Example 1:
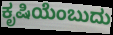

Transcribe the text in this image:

ಕೃಷಿಯೆಂಬುದು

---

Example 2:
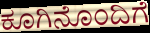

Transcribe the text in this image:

ಕೂಗಿನೊಂದಿಗೆ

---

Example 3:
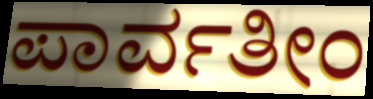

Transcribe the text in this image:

ಪಾರ್ವತೀಂ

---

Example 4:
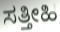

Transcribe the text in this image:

ಸತ್ತೀಹಿ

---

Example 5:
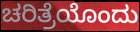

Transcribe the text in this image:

ಚರಿತ್ರೆಯೊಂದು